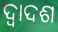
ଦ୍ୱାଦଶ